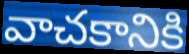
వాచకానికి